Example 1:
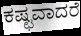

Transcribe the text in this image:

ಕಷ್ಟವಾದರೆ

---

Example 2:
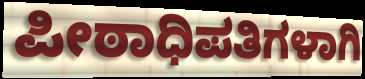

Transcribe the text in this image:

ಪೀಠಾಧಿಪತಿಗಳಾಗಿ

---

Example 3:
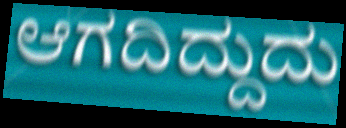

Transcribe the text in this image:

ಆಗದಿದ್ದುದು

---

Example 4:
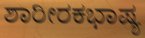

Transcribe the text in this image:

ಶಾರೀರಕಭಾಷ್ಯ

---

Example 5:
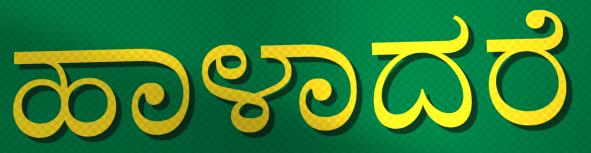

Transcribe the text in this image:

ಹಾಳಾದರೆ